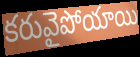
కరువైపోయాయి